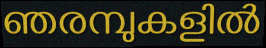
ഞരമ്പുകളിൽ